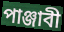
পাঞ্জাবী